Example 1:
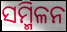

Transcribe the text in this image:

ସମ୍ମିଳନ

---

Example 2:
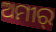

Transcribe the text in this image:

ଅମୀର୍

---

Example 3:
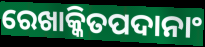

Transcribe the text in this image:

ରେଖାକ୍କିତପଦାନାଂ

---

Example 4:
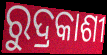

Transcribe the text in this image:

ରୁଦ୍ରକାଶୀ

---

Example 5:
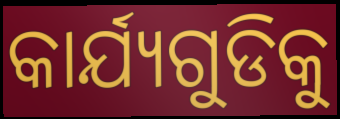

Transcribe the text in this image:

କାର୍ଯ୍ୟଗୁଡିକୁ